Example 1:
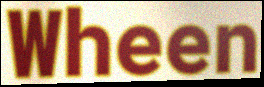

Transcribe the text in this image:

Wheen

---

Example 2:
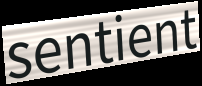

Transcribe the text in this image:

sentient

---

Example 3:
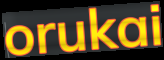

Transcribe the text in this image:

orukai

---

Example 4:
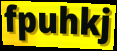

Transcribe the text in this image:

fpuhkj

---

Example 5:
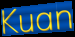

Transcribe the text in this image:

Kuan